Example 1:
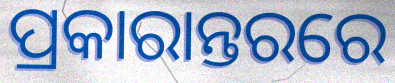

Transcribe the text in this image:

ପ୍ରକାରାନ୍ତରରେ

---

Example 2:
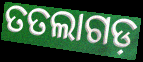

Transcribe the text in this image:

ତତଲାଗଡ଼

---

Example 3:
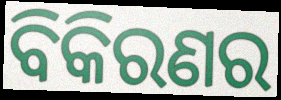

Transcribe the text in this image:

ବିକିରଣର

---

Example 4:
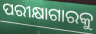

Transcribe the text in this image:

ପରୀକ୍ଷାଗାରକୁ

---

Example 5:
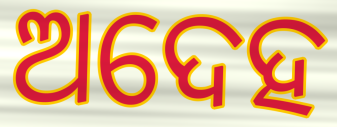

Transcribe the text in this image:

ଅଦେହ